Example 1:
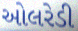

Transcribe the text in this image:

ઓલરેડી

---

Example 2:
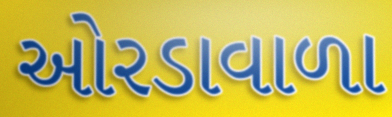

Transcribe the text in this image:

ઓરડાવાળા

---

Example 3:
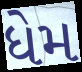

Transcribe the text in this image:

ધેમ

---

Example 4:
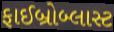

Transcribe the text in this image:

ફાઈબ્રોબ્લાસ્ટ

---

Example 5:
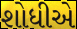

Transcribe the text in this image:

શોધીએ